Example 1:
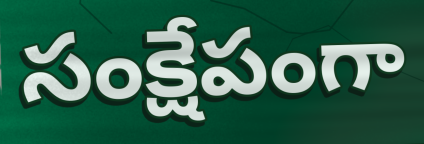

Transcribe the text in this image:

సంక్షేపంగా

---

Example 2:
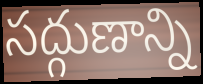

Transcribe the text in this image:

సద్గుణాన్ని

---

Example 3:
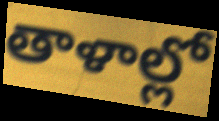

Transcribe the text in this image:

తాళాల్లో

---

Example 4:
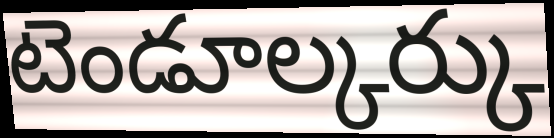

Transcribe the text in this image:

టెండూల్కర్కు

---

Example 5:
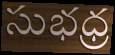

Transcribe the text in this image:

సుభధ్ర